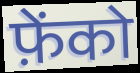
फ़ेंको